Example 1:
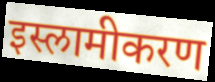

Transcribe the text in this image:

इस्लामीकरण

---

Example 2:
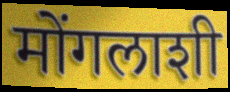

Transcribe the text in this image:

मोंगलाशी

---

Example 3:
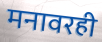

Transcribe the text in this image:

मनावरही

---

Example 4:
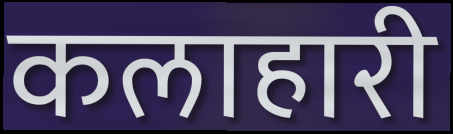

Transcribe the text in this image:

कलाहारी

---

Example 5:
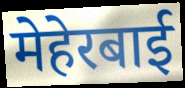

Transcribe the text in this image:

मेहेरबाई